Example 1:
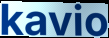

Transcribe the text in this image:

kavio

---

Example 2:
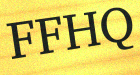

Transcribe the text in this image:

FFHQ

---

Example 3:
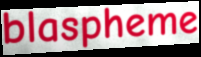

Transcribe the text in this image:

blaspheme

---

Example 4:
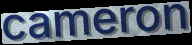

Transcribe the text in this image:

cameron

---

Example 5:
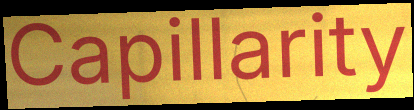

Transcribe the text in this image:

Capillarity